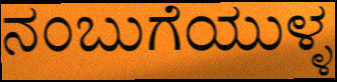
ನಂಬುಗೆಯುಳ್ಳ